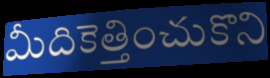
మీదికెత్తించుకొని